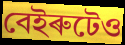
বেইৰুটেও